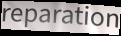
reparation